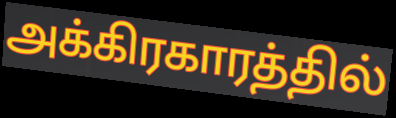
அக்கிரகாரத்தில்